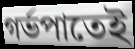
গৰ্ভপাতেই